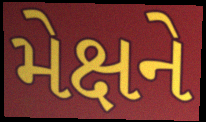
મેક્ષને